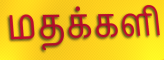
மதக்களி